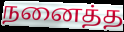
நனைத்த